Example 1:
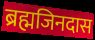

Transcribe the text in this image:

ब्रह्मजिनदास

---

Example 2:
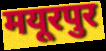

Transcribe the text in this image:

मयूरपुर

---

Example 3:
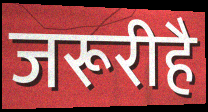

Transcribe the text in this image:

जरूरीहै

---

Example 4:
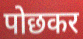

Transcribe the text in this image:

पोछकर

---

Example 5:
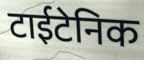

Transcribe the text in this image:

टाईटेनिक